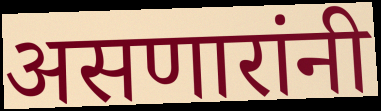
असणारांनी